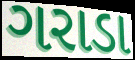
ગરાડા